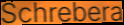
Schrebera